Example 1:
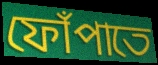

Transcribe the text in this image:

ফোঁপাতে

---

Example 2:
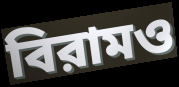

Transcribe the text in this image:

বিরামও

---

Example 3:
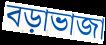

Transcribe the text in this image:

বড়াভাজা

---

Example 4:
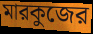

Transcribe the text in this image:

মারকুজের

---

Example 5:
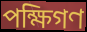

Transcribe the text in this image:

পক্ষিগণ